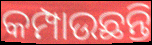
କମ୍ପାଉଛନ୍ତି